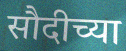
सौदीच्या